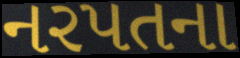
નરપતના